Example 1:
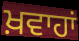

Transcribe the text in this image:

ਖ਼ਵਾਹਾਂ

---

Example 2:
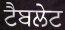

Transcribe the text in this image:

ਟੈਬਲੇਟ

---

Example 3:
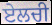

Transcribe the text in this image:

ਏਲਚੀ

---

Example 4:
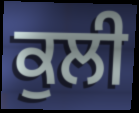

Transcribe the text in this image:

ਕੁਲੀ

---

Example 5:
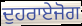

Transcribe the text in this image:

ਦੁਹਰਾਏਜੋਗ